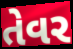
તેવર